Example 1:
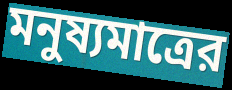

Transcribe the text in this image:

মনুষ্যমাত্রের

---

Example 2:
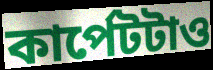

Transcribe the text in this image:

কার্পেটটাও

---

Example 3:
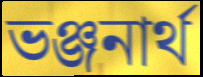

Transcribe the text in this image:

ভঞ্জনার্থ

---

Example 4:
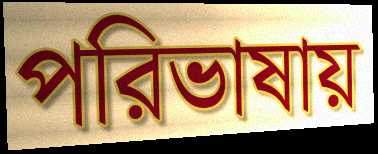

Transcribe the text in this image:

পরিভাষায়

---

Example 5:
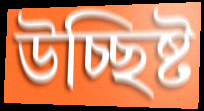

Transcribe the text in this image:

উচ্ছিষ্ট